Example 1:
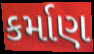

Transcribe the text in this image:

કર્માણ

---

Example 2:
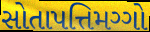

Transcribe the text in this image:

સોતાપત્તિમગ્ગો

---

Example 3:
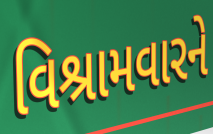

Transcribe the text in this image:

વિશ્રામવારને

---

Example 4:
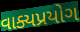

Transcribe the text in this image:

વાક્યપ્રયોગ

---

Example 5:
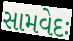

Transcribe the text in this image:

સામવેદઃ